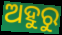
ଅହୁରୁ